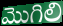
మొగిలి